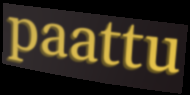
paattu